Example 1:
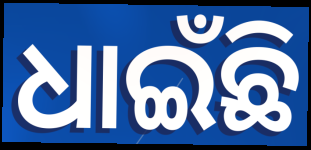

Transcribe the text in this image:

ଧାଇଁଛି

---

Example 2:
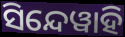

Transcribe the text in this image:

ସିନ୍ଦେୱାହି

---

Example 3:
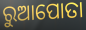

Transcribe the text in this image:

ରୁଆପୋତା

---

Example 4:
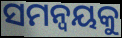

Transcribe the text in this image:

ସମନ୍ବୟକୁ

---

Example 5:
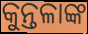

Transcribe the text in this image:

କୁନ୍ତଳାଙ୍କ